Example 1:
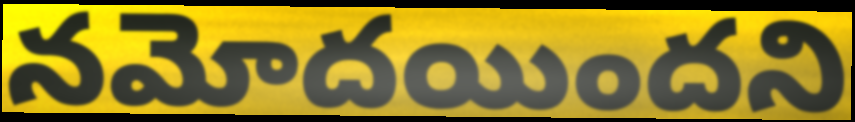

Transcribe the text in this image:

నమోదయిందని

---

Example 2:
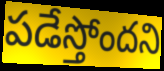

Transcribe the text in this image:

పడేస్తోందని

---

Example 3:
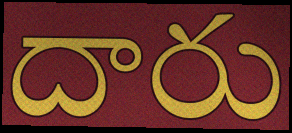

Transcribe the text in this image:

దారు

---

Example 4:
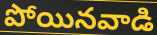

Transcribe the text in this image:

పోయినవాడి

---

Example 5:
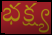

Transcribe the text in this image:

భక్ష్య